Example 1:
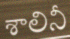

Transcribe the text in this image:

శాలినీ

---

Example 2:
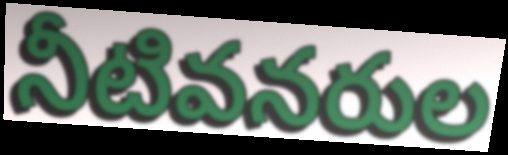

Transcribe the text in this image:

నీటివనరుల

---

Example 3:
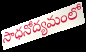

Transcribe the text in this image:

సాధనోద్యమంలో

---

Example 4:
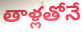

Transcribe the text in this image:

తాళ్లతోనే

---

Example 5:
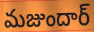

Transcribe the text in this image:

మజుందార్